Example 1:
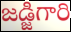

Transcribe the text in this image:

జడ్జిగారి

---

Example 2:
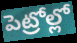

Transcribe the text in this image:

పెట్రోల్లో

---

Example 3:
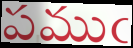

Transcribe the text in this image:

పముఁ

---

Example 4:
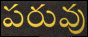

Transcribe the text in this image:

పరువు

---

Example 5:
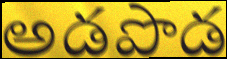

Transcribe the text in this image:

అడపొడ